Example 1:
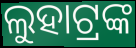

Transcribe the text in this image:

ଲୁହାଟ୍ରଙ୍କ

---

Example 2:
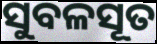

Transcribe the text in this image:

ସୁବଳସୂତ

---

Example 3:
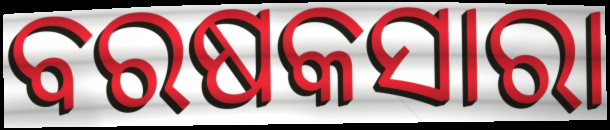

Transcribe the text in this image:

ବରଷକସାରା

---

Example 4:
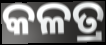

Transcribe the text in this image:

କଳତ୍ର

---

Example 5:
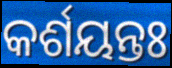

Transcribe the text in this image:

କର୍ଶୟନ୍ତଃ